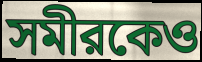
সমীরকেও